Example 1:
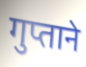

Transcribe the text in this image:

गुप्ताने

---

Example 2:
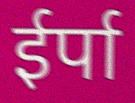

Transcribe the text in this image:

ईर्पा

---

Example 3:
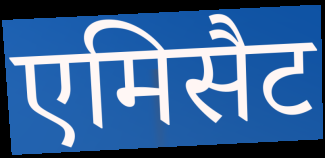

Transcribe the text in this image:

एमिसैट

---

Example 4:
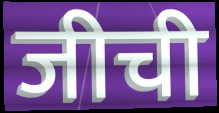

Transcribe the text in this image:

जीची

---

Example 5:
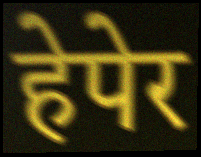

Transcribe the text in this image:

हेपेर